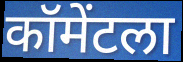
कॉमेंटला